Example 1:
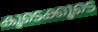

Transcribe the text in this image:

കൂടെക്കൂടെ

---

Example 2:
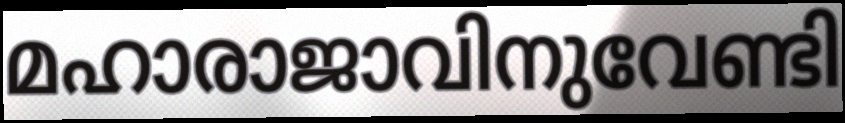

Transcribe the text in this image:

മഹാരാജാവിനുവേണ്ടി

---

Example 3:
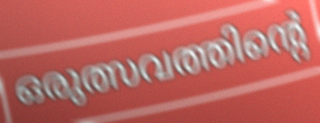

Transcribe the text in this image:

ഒരുത്സവത്തിന്റെ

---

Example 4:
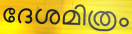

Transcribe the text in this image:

ദേശമിത്രം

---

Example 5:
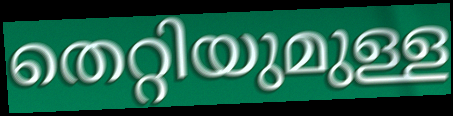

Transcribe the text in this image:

തെറ്റിയുമുള്ള